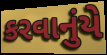
કરવાનુંયે